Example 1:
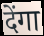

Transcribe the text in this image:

देंगा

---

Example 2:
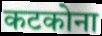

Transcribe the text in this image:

कटकोना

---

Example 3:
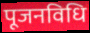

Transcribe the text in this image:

पूजनविधि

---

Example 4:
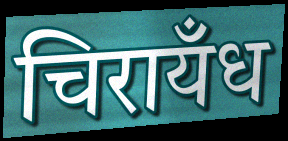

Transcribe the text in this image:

चिरायँध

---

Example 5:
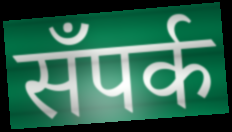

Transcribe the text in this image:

सँपर्क